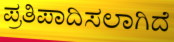
ಪ್ರತಿಪಾದಿಸಲಾಗಿದೆ